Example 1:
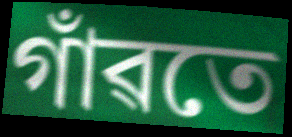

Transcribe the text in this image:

গাঁৱতে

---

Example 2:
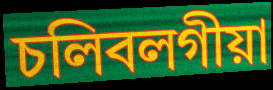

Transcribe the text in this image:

চলিবলগীয়া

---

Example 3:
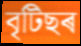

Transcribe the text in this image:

বৃটিছৰ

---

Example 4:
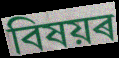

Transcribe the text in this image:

বিষয়ৰ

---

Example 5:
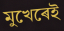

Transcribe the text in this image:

মুখেৰেই